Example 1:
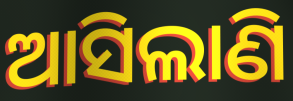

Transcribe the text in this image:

ଆସିଲାଣି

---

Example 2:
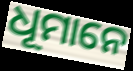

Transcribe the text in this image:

ଧୂମାନେ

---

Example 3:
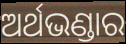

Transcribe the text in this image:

ଅର୍ଥଭଣ୍ଡାର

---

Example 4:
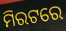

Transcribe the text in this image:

ମିରଟରେ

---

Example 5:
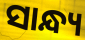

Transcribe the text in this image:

ସାନ୍ଧ୍ୟ